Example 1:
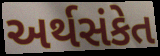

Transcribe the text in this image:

અર્થસંકેત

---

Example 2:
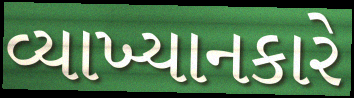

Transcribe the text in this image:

વ્યાખ્યાનકારે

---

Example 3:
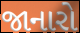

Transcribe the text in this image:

જાનારો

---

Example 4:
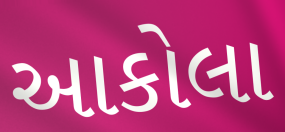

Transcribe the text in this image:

આકોલા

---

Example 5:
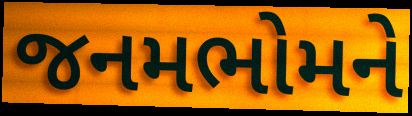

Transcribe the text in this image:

જનમભોમને